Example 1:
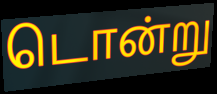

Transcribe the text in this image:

டொன்று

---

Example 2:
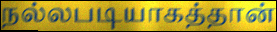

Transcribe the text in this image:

நல்லபடியாகத்தான்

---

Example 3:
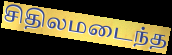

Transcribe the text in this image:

சிதிலமடைந்த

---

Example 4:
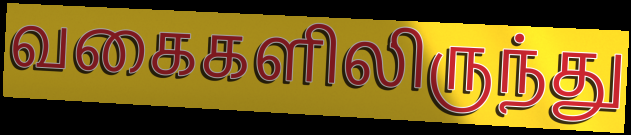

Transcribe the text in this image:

வகைகளிலிருந்து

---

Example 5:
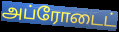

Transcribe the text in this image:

அப்ரோடைட்